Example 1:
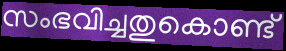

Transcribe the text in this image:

സംഭവിച്ചതുകൊണ്ട്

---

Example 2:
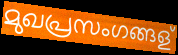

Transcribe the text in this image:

മുഖപ്രസംഗങ്ങള്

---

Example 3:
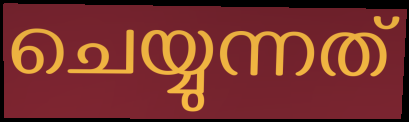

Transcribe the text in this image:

ചെയ്യുന്നത്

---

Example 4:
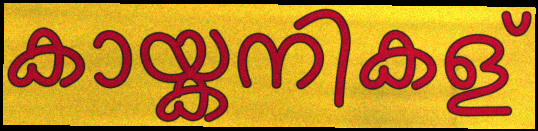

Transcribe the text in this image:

കായ്കനികള്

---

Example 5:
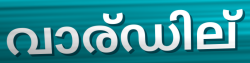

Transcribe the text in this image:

വാര്ഡില്